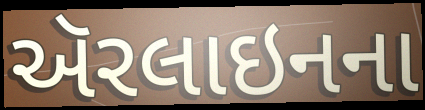
ઍરલાઇનના